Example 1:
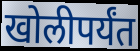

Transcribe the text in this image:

खोलीपर्यंत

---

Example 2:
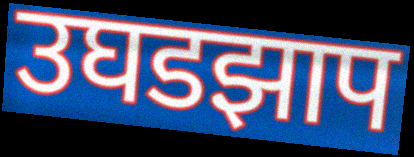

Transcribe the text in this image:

उघडझाप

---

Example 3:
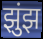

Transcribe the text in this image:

झुंझ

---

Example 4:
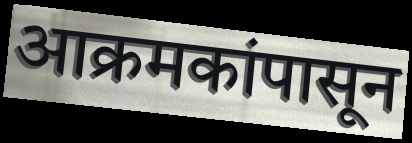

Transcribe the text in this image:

आक्रमकांपासून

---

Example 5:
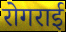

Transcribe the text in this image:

रोगराई